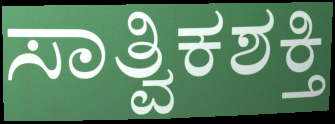
ಸಾತ್ವಿಕಶಕ್ತಿ